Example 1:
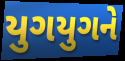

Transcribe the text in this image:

યુગયુગને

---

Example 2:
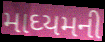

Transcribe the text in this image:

માઘ્યમની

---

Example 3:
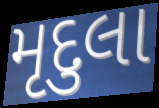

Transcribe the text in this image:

મૃદુલા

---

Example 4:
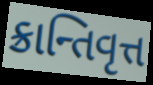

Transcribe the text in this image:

ક્રાન્તિવૃત્ત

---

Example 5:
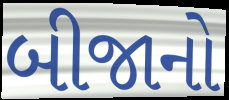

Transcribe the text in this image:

બીજાનો